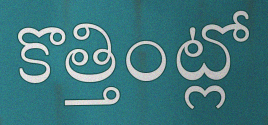
కొత్తింట్లో